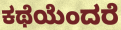
ಕಥೆಯೆಂದರೆ